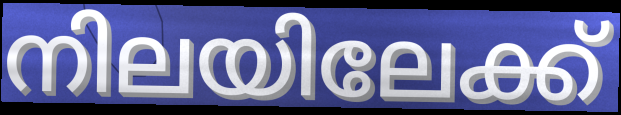
നിലയിലേക്ക്